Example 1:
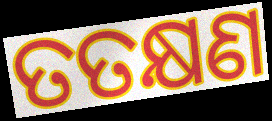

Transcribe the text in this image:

ତତକ୍ଷଣ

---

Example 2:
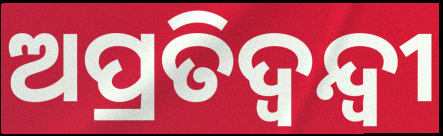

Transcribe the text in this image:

ଅପ୍ରତିଦ୍ବନ୍ଦ୍ବୀ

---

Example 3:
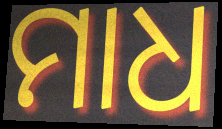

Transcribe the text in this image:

ମାଧ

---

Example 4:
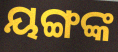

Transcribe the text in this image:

ୟଙ୍ଗଙ୍କ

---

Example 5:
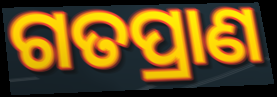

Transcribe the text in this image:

ଗତପ୍ରାଣ